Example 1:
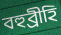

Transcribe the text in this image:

বহুব্ৰীহি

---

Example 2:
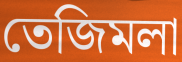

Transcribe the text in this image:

তেজিমলা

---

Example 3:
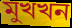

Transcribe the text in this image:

মুখখন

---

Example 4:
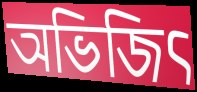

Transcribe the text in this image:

অভিজিৎ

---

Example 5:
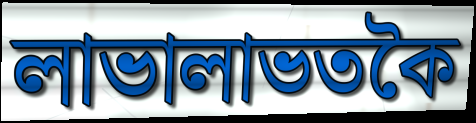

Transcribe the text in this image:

লাভালাভতকৈ